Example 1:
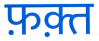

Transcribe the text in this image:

फ़क़्त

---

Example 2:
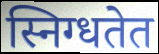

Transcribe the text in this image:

स्निग्धतेत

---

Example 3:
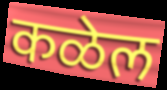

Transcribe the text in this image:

कळेल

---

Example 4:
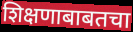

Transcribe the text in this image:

शिक्षणाबाबतचा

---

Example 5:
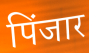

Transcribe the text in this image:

पिंजार